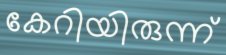
കേറിയിരുന്ന്